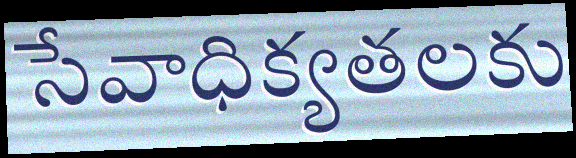
సేవాధిక్యతలకు